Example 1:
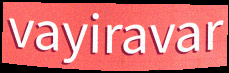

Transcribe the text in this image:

vayiravar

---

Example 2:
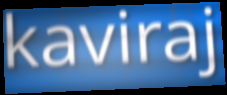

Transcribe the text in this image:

kaviraj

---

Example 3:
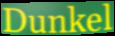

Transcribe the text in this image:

Dunkel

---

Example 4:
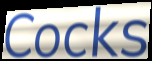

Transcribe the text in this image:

Cocks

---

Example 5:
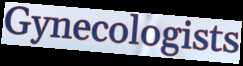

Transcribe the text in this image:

Gynecologists